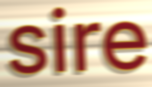
sire